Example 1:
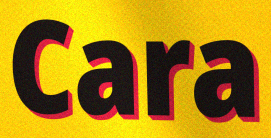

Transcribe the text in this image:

Cara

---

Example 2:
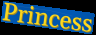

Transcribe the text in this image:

Princess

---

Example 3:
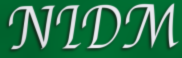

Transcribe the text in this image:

NIDM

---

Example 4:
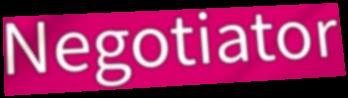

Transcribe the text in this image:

Negotiator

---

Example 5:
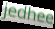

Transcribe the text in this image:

jedhee